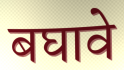
बघावे